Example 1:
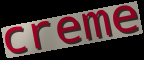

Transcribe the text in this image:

creme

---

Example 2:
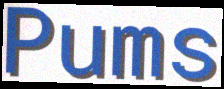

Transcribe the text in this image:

Pums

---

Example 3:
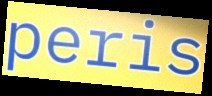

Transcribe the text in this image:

peris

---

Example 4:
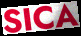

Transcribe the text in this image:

SICA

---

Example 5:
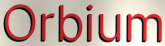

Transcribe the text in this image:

Orbium